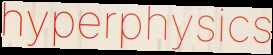
hyperphysics